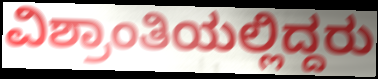
ವಿಶ್ರಾಂತಿಯಲ್ಲಿದ್ದರು